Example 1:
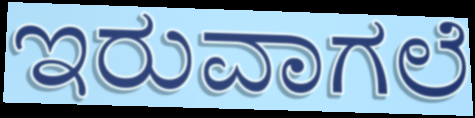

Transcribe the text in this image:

ಇರುವಾಗಲೆ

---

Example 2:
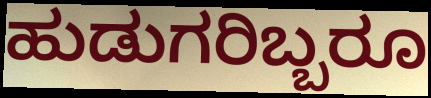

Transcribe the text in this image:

ಹುಡುಗರಿಬ್ಬರೂ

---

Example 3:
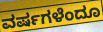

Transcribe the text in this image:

ವರ್ಷಗಳೆಂದೂ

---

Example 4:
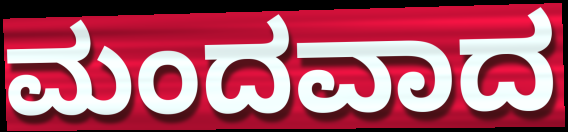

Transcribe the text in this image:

ಮಂದವಾದ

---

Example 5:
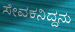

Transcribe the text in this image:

ಸೇವಕನಿದ್ದನು